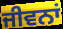
ਜੀਵਨਾਂ